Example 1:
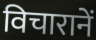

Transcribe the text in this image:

विचारानें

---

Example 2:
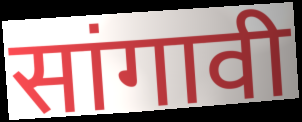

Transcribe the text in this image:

सांगावी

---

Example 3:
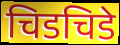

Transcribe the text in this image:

चिडचिडे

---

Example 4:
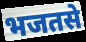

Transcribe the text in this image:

भजतसे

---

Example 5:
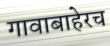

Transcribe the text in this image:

गावाबाहेरच